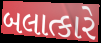
બલાત્કારે